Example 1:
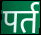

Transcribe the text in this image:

पर्त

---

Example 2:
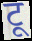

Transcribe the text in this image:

टू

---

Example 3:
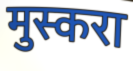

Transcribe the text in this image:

मुस्करा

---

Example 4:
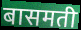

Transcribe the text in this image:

बासमती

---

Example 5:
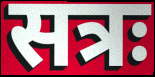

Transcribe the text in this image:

सत्रः